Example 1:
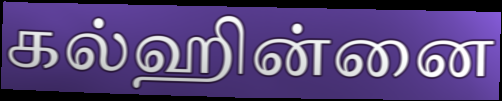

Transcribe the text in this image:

கல்ஹின்னை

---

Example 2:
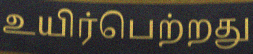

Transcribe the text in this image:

உயிர்பெற்றது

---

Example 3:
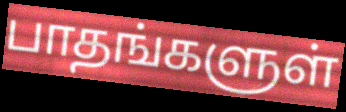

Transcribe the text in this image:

பாதங்களுள்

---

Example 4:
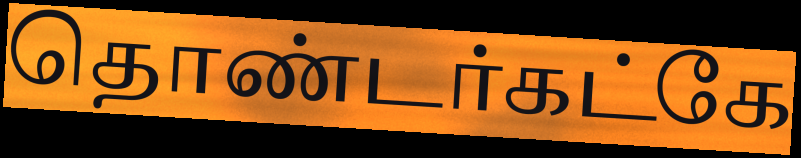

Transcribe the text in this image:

தொண்டர்கட்கே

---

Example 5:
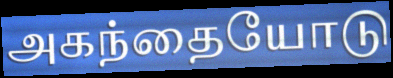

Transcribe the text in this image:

அகந்தையோடு